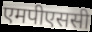
एमपीएससी